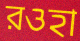
রওহা